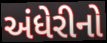
અંધેરીનો